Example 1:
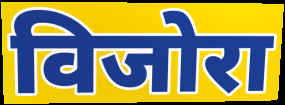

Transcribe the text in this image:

विजोरा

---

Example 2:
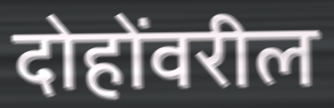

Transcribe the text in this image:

दोहोंवरील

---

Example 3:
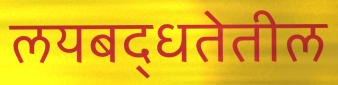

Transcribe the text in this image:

लयबद्धतेतील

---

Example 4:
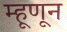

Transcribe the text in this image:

म्हूणून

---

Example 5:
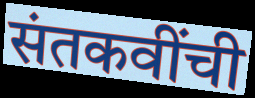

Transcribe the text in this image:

संतकवींची